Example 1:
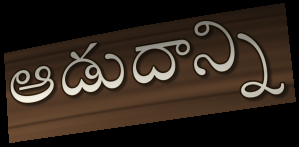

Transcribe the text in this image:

ఆడుదాన్ని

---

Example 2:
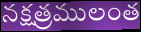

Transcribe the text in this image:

నక్షత్రములంత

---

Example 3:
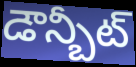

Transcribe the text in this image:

డౌన్బీట్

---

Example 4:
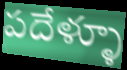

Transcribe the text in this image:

పదేళ్ళూ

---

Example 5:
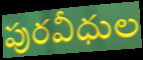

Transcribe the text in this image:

పురవీధుల